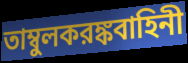
তাম্বুলকরঙ্কবাহিনী